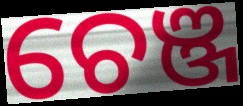
ଚେଞ୍ଜ